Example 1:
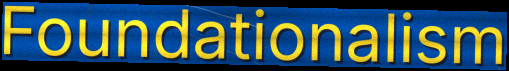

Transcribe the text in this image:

Foundationalism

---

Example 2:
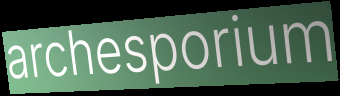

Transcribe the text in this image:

archesporium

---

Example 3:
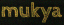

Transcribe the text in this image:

mukya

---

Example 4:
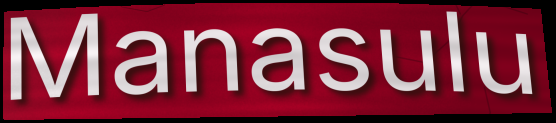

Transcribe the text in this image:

Manasulu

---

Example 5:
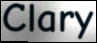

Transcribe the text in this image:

Clary